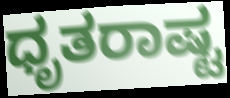
ಧೃತರಾಷ್ಟ